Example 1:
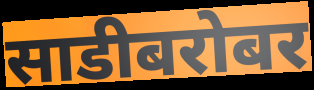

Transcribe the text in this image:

साडीबरोबर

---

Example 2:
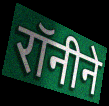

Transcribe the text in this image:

रॉनीने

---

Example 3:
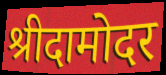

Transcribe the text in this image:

श्रीदामोदर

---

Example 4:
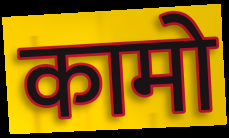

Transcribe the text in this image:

कामो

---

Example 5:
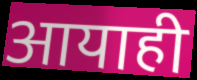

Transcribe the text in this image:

आयाही